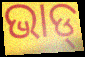
ଭାଡ୍